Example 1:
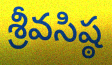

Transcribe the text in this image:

శ్రీవసిష్ఠ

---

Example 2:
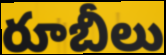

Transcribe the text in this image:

రూబీలు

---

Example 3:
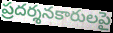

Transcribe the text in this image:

ప్రదర్శనకారులపై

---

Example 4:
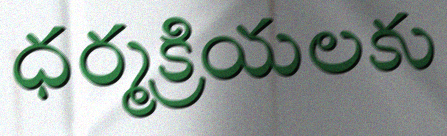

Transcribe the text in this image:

ధర్మక్రియలకు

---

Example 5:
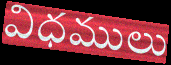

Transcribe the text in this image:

విధములు